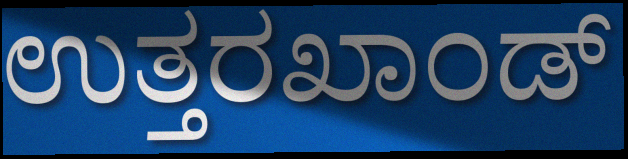
ಉತ್ತರಖಾಂಡ್